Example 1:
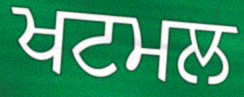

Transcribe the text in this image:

ਖਟਮਲ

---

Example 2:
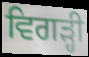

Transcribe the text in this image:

ਵਿਗੜ੍ਹੀ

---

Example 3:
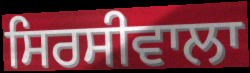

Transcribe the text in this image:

ਸਿਰਸੀਵਾਲਾ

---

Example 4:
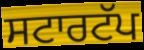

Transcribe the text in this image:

ਸਟਾਰਟੱਪ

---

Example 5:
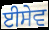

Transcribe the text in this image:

ਈਸੇਵ